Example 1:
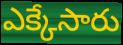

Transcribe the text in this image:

ఎక్కేసారు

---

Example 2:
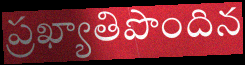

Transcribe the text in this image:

ప్రఖ్యాతిపొందిన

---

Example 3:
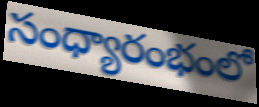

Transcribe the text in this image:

సంధ్యారంభంలో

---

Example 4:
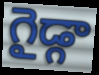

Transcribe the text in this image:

గైడ్గా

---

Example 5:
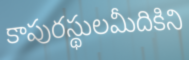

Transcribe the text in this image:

కాపురస్థులమీదికిని